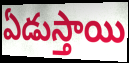
ఏడుస్తాయి